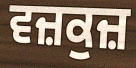
ਵਜ਼ਕੁਜ਼